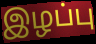
இழப்பு